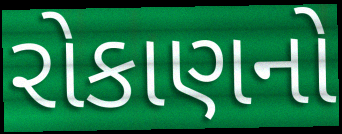
રોકાણનો